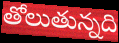
తోలుతున్నది